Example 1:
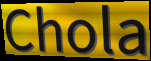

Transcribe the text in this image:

Chola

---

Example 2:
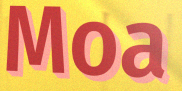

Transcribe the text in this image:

Moa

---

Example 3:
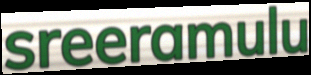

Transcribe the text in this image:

sreeramulu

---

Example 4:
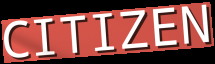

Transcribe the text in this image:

CITIZEN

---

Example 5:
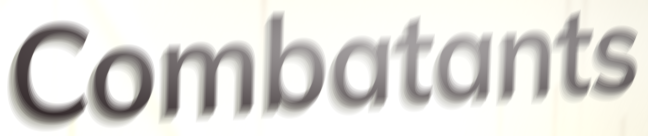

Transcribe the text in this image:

Combatants